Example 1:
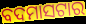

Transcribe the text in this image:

ବଦମାସଟାର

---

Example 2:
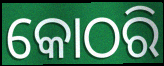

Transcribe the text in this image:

କୋଠରି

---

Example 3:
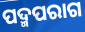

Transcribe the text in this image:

ପଦ୍ମପରାଗ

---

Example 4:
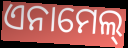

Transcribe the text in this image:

ଏନାମେଲ୍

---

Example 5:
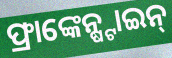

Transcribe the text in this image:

ଫ୍ରାଙ୍କେନ୍ଷ୍ଟାଇନ୍